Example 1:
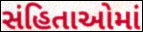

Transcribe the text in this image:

સંહિતાઓમાં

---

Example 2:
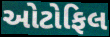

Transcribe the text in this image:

ઓટોફિલ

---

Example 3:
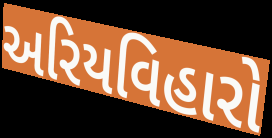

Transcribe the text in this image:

અરિયવિહારો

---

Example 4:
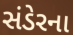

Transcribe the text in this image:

સંડેરના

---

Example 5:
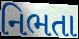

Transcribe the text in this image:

નિભતા